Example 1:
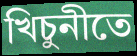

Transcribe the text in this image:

খিচুনীতে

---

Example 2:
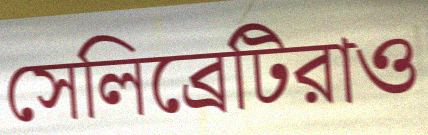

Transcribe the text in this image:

সেলিব্রেটিরাও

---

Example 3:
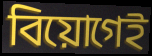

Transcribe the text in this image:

বিয়োগেই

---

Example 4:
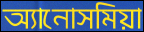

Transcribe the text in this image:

অ্যানোসমিয়া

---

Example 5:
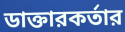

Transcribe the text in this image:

ডাক্তারকর্তার